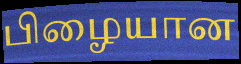
பிழையான